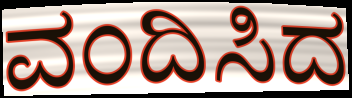
ವಂದಿಸಿದ